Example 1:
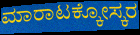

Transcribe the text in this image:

ಮಾರಾಟಕ್ಕೋಸ್ಕರ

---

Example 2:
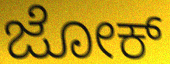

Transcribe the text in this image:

ಜೋಕ್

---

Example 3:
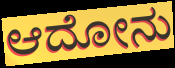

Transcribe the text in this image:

ಆದೋನು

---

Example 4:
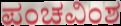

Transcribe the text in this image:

ಪಂಚವಿಂಶ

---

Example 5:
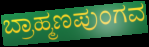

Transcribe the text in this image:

ಬ್ರಾಹ್ಮಣಪುಂಗವ